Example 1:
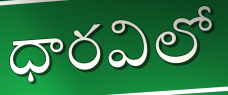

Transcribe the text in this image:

ధారవిలో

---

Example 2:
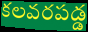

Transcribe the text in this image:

కలవరపడ్డ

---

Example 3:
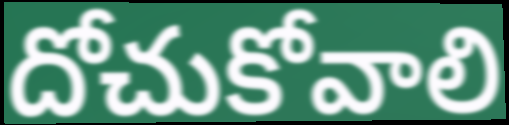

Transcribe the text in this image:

దోచుకోవాలి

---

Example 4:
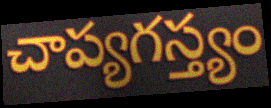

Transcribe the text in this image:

చాప్యగస్త్యం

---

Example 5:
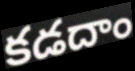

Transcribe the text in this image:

కడదాం